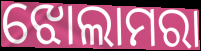
ଝୋଲାମରା